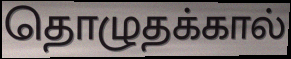
தொழுதக்கால்